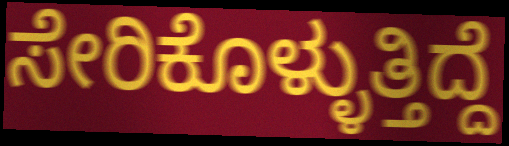
ಸೇರಿಕೊಳ್ಳುತ್ತಿದ್ದೆ